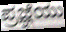
ಪ್ರಜ್ಞೆಯು